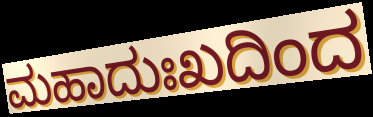
ಮಹಾದುಃಖದಿಂದ